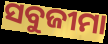
ସବୁଜୀମା